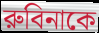
রুবিনাকে